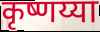
कृष्णय्या